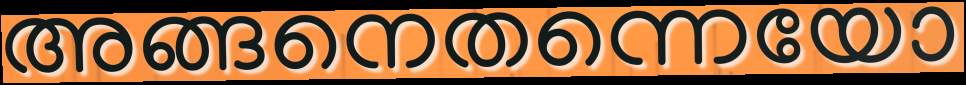
അങ്ങനെതന്നെയോ